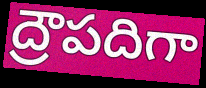
ద్రౌపదిగా